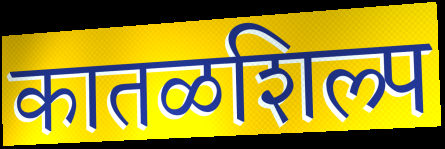
कातळशिल्प